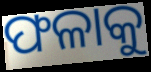
ଫଳାକୁ